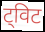
ट्विट